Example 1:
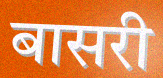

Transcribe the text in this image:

बासरी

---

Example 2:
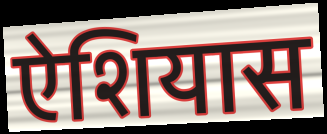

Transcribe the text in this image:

ऐशियास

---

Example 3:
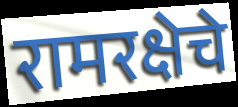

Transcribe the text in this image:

रामरक्षेचे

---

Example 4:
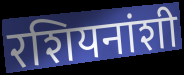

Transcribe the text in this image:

रशियनांशी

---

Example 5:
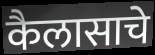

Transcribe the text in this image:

कैलासाचे